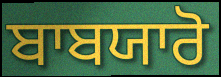
ਬਾਬਯਾਰੋ